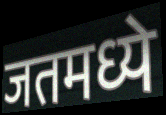
जतमध्ये